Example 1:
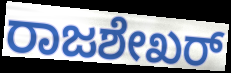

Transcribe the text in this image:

ರಾಜಶೇಖರ್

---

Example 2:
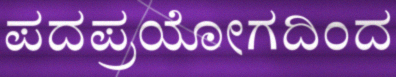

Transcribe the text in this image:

ಪದಪ್ರಯೋಗದಿಂದ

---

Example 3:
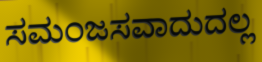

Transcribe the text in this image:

ಸಮಂಜಸವಾದುದಲ್ಲ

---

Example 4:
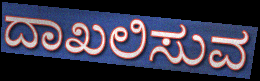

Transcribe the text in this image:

ದಾಖಲಿಸುವ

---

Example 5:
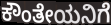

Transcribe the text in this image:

ಕೌಂತೇಯನಿಗೆ